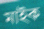
মাইক